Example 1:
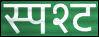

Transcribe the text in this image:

स्पश्ट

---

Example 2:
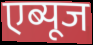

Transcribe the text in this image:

एब्यूज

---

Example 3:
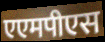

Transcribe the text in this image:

एएमपीएस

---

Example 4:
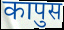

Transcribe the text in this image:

कापुस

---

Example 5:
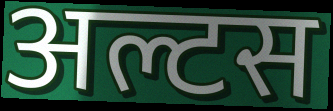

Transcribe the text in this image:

अल्टस